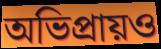
অভিপ্রায়ও